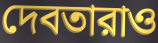
দেবতারাও